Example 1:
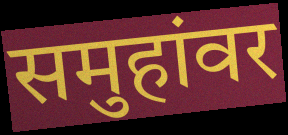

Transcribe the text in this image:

समुहांवर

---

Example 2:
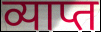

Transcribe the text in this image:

व्याप्त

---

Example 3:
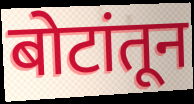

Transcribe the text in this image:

बोटांतून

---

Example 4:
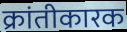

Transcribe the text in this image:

क्रांतीकारक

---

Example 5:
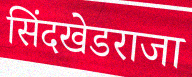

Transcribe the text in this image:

सिंदखेडराजा